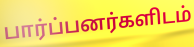
பார்ப்பனர்களிடம்